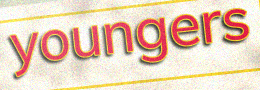
youngers